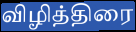
விழித்திரை